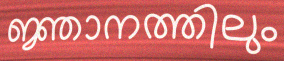
ജ്ഞാനത്തിലും